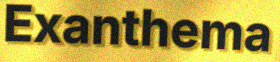
Exanthema